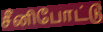
சீனிபோட்டு